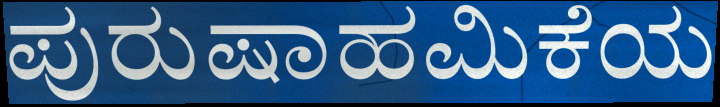
ಪುರುಷಾಹಮಿಕೆಯ